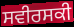
ਸਵੀਰਸਕੀ